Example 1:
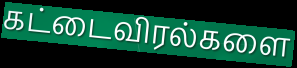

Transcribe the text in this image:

கட்டைவிரல்களை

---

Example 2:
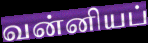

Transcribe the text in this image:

வன்னியப்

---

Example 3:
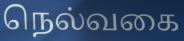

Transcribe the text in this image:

நெல்வகை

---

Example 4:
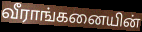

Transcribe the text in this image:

வீராங்கனையின்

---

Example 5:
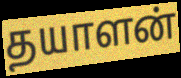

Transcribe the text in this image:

தயாளன்